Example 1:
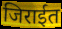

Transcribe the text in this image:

जिराईत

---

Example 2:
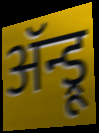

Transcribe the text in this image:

ॲन्ड्रू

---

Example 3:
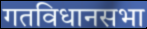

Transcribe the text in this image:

गतविधानसभा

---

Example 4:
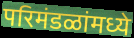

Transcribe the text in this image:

परिमंडळांमध्ये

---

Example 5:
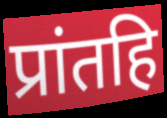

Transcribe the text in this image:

प्रांतहि